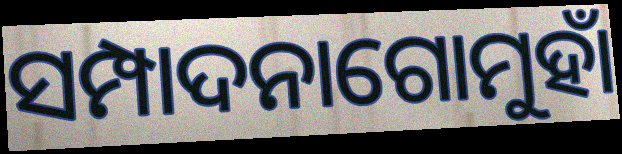
ସମ୍ପାଦନାଗୋମୁହାଁ